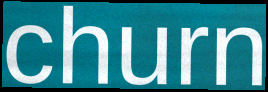
churn